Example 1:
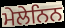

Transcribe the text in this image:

ਮੇਲੇਨਿਨ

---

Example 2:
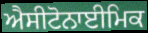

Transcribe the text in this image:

ਐਸੀਟੋਨਾਈਮਿਕ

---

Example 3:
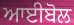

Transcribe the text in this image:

ਆਈਬੋਲ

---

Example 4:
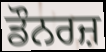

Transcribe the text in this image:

ਡੌਨਰਜ਼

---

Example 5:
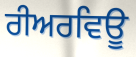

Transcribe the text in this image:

ਰੀਅਰਵਿਊ